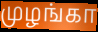
முழங்கா